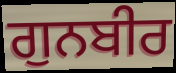
ਗੁਨਬੀਰ